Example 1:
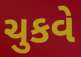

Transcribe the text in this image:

ચુકવે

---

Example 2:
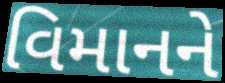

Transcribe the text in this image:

વિમાનને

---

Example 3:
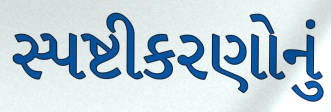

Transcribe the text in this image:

સ્પષ્ટીકરણોનું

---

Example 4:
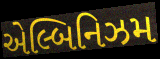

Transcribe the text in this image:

એલ્બિનિઝમ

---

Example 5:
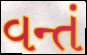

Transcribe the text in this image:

વન્તં